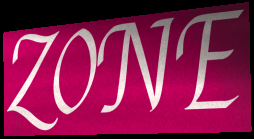
ZONE